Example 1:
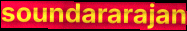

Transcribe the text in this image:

soundararajan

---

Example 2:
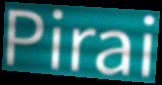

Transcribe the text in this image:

Pirai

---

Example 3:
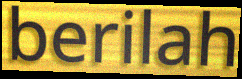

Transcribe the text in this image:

berilah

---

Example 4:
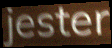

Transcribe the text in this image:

jester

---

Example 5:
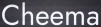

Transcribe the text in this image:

Cheema